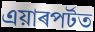
এয়াৰপৰ্টত